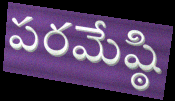
పరమేష్ఠి